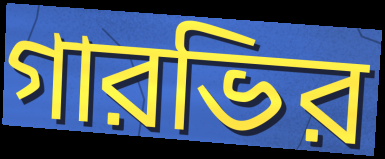
গারভির